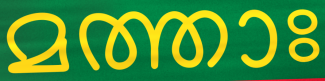
മത്താഃ